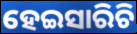
ହେଇସାରିଚି